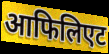
आफिलिएट